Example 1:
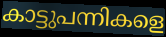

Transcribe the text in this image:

കാട്ടുപന്നികളെ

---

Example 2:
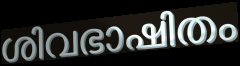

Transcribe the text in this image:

ശിവഭാഷിതം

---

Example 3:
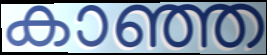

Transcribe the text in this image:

കാഞ്ഞ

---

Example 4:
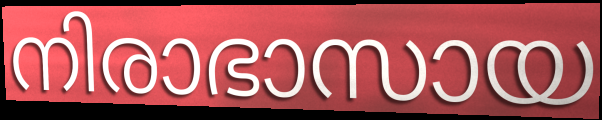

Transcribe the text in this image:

നിരാഭാസായ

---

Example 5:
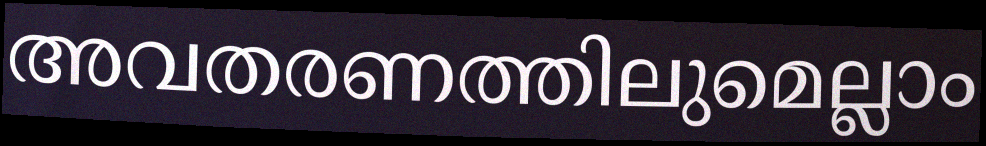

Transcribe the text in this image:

അവതരണത്തിലുമെല്ലാം